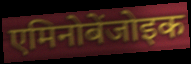
एमिनोबेंजोइक